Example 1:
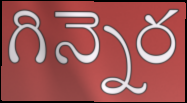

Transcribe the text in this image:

గిన్నెర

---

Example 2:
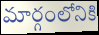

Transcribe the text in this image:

మార్గంలోనికి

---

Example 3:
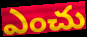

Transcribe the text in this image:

ఎంచు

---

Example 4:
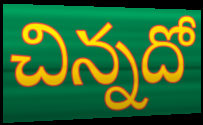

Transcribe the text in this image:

చిన్నదో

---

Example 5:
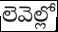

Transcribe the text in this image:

లెవెల్లో